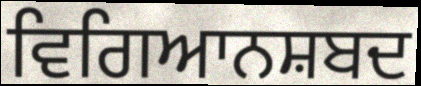
ਵਿਗਿਆਨਸ਼ਬਦ